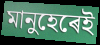
মানুহেৰেই